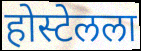
होस्टेलला